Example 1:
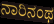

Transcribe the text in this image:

ನಾರಿನಂಥ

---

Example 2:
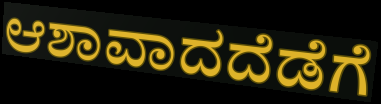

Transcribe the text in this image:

ಆಶಾವಾದದೆಡೆಗೆ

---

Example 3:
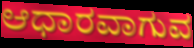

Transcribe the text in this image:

ಆಧಾರವಾಗುವ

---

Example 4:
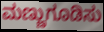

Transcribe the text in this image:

ಮಣ್ಣುಗೂಡಿಸು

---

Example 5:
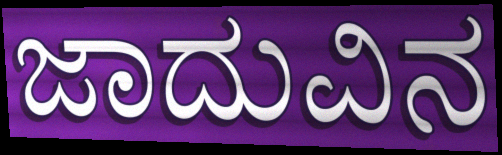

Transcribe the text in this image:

ಜಾದುವಿನ